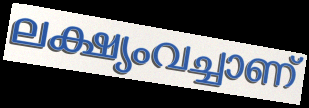
ലക്ഷ്യംവച്ചാണ്